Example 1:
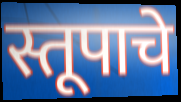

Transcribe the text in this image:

स्तूपाचे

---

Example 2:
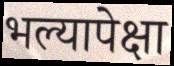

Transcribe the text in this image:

भल्यापेक्षा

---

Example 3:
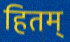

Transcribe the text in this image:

हितम्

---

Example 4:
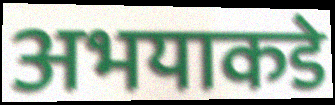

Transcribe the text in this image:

अभयाकडे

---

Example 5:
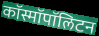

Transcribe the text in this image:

कॉस्मॉपॉलिटन